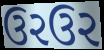
ઉરઉર